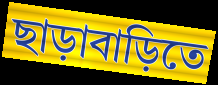
ছাড়াবাড়িতে